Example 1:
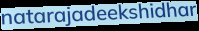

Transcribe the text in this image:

natarajadeekshidhar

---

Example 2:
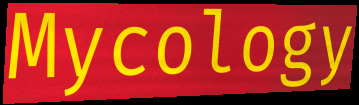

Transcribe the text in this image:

Mycology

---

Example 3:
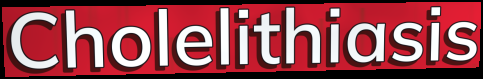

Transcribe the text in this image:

Cholelithiasis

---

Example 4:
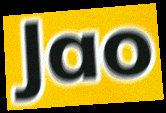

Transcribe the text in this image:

Jao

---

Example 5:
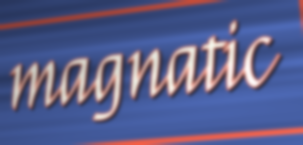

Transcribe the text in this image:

magnatic